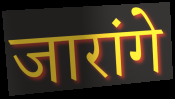
जारांगे